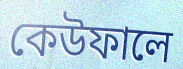
কেউফালে